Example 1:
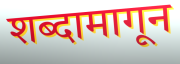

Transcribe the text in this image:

शब्दामागून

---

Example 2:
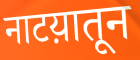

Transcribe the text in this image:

नाटय़ातून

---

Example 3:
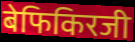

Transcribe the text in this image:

बेफिकिरजी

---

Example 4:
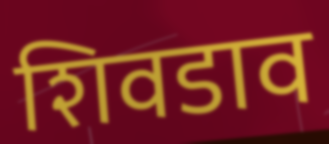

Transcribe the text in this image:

शिवडाव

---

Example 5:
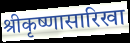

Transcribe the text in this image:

श्रीकृष्णासारिखा